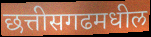
छत्तीसगढमधील